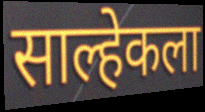
साल्हेकला